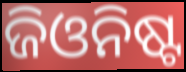
ଜିଓନିଷ୍ଟ